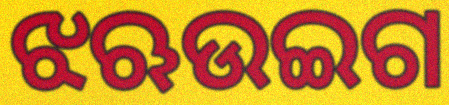
ଝଋଉଇଗ